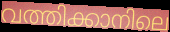
വത്തിക്കാനിലെ